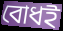
বোধই